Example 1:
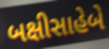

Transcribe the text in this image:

બક્ષીસાહેબે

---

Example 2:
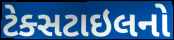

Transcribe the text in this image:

ટેક્સટાઇલનો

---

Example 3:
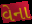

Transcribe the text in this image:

વેના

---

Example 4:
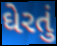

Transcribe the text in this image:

ઘેરતું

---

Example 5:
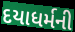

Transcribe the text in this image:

દયાધર્મની